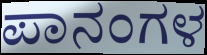
ಪಾನಂಗಳ